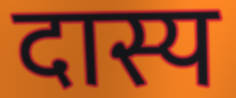
दास्य